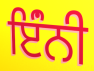
ਇੰਂਨੀ